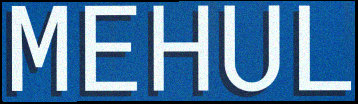
MEHUL